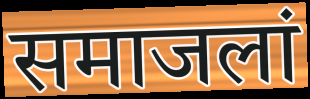
समाजलां